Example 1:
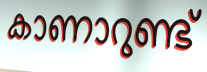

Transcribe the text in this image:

കാണാറുണ്ട്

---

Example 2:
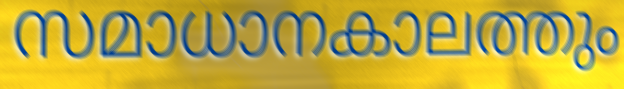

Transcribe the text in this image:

സമാധാനകാലത്തും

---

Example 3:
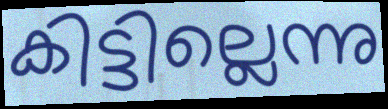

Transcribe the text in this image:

കിട്ടില്ലെന്നു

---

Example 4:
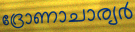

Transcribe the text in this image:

ദ്രോണാചാര്യർ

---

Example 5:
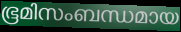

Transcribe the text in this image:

ഭൂമിസംബന്ധമായ